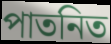
পাতনিত